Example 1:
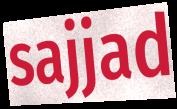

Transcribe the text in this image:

sajjad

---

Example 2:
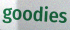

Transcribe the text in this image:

goodies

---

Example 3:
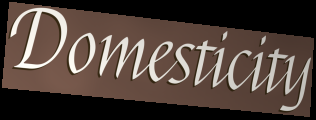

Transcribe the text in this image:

Domesticity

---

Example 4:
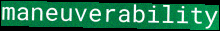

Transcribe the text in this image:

maneuverability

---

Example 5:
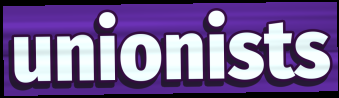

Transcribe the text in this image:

unionists